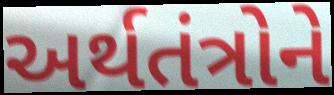
અર્થતંત્રોને